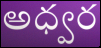
అధ్వర